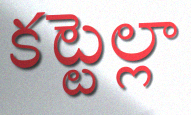
కట్టెల్లా